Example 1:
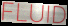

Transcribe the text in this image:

FLUID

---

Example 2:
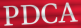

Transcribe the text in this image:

PDCA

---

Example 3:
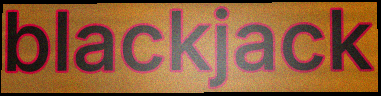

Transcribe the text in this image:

blackjack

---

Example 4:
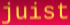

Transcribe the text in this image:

juist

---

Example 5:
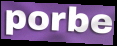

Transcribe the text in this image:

porbe